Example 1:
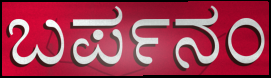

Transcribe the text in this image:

ಬರ್ಪನಂ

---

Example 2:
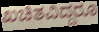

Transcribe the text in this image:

ಖಚಿತವಿದ್ದರೂ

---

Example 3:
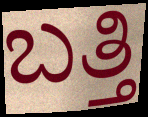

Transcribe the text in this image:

ಬತ್ತಿ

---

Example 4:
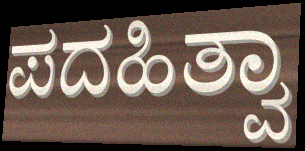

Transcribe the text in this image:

ಪದಹಿತ್ವಾ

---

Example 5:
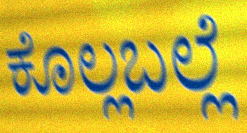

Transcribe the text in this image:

ಕೊಲ್ಲಬಲ್ಲೆ